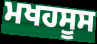
ਮਖਹਸੂਸ